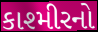
કાશ્મીરનો